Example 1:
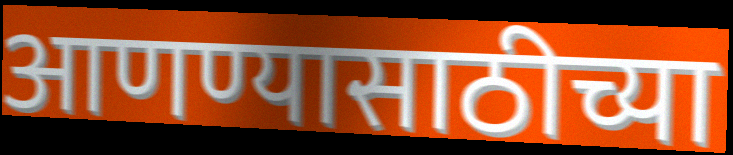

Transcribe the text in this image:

आणण्यासाठीच्या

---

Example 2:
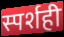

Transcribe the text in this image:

स्पर्शही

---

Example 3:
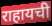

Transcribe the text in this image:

राहायची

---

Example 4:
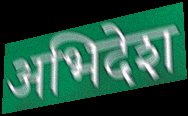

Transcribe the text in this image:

अभिदेश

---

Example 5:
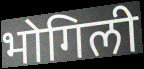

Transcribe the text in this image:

भोगिली